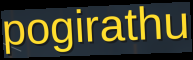
pogirathu